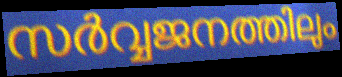
സർവ്വജനത്തിലും